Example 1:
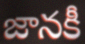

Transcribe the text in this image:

జానకీ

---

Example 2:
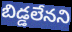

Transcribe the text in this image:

బిడ్డలేనని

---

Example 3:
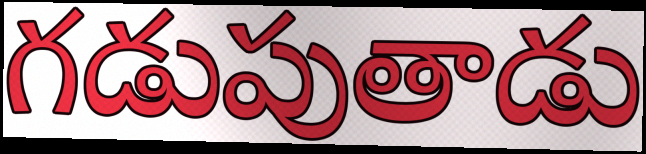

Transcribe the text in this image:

గడుపుతాడు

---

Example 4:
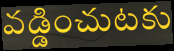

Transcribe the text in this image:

వడ్డించుటకు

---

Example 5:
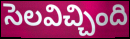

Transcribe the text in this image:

సెలవిచ్చింది